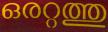
ഒരറ്റത്തു